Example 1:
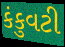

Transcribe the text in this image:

કંકુવટી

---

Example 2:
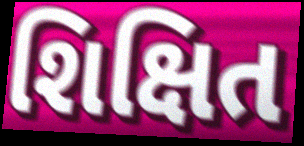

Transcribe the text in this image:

શિક્ષિત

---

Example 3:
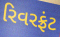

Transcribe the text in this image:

રિવરફ્રંટ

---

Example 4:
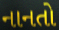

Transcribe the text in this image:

નાનતો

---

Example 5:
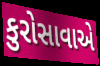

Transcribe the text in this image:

કુરોસાવાએ